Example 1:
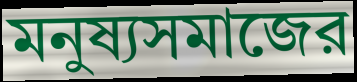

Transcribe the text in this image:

মনুষ্যসমাজের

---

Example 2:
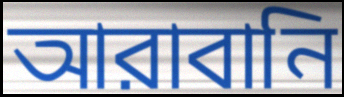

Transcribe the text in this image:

আরাবানি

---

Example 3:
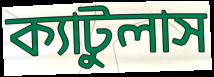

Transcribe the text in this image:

ক্যাটুলাস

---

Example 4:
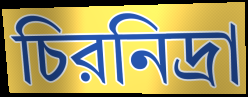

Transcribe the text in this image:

চিরনিদ্রা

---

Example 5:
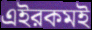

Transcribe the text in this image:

এইরকমই